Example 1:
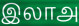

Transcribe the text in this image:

இலாஅ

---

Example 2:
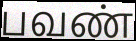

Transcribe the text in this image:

பவண்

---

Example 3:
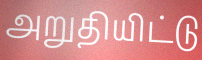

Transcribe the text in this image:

அறுதியிட்டு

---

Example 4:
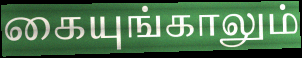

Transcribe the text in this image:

கையுங்காலும்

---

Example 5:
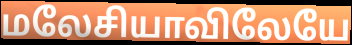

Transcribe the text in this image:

மலேசியாவிலேயே